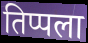
तिप्पला